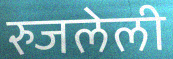
रुजलेली